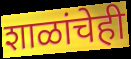
शाळांचेही